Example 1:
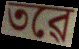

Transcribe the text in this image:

তৱে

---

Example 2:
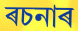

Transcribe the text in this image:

ৰচনাৰ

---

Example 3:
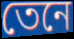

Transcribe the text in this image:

তেনে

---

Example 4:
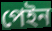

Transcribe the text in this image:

পেইন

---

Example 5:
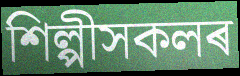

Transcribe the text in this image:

শিল্পীসকলৰ